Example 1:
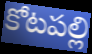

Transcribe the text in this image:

కోటపల్లి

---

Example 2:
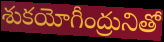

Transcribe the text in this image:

శుకయోగీంద్రునితో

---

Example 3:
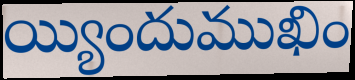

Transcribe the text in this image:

య్యిందుముఖిం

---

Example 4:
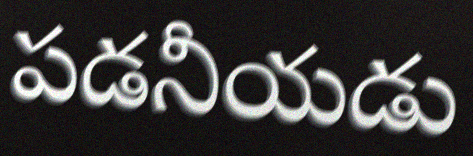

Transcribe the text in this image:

పడనీయడు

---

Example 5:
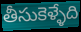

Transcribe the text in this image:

తీసుకెళ్ళేది